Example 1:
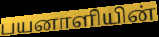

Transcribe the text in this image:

பயனாளியின்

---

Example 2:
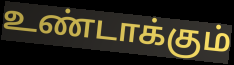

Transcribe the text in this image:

உண்டாக்கும்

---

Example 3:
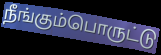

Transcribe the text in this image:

நீங்கும்பொருட்டு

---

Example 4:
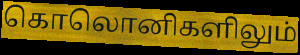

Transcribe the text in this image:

கொலொனிகளிலும்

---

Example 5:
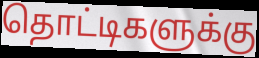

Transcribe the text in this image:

தொட்டிகளுக்கு